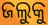
ଜଲୁକୁ